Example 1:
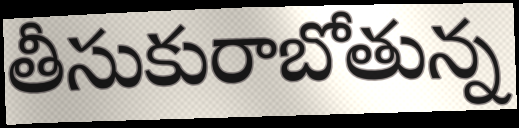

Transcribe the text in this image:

తీసుకురాబోతున్న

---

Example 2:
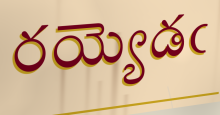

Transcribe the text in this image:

రయ్యెడఁ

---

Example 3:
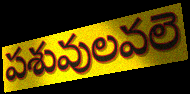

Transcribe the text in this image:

పశువులవలె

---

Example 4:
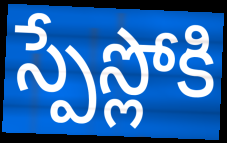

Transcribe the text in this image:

స్పేస్లోకి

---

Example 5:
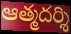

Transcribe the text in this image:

ఆత్మదర్శి